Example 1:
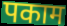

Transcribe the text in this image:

पकाम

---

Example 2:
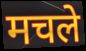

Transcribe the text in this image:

मचले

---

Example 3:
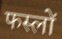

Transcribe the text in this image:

फस्लों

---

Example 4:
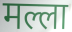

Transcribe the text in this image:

मल्ला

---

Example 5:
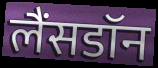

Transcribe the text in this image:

लैंसडॉन